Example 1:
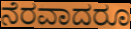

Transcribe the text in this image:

ನೆರವಾದರೂ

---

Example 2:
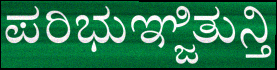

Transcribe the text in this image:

ಪರಿಭುಞ್ಜಿತುನ್ತಿ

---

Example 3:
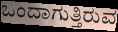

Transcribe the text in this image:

ಒಂದಾಗುತ್ತಿರುವ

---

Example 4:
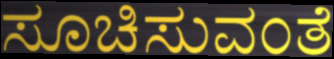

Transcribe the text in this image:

ಸೂಚಿಸುವಂತೆ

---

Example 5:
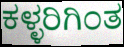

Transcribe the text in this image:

ಕಳ್ಳರಿಗಿಂತ